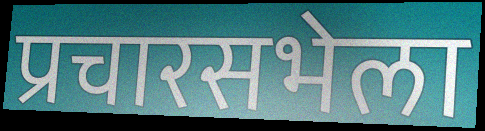
प्रचारसभेला